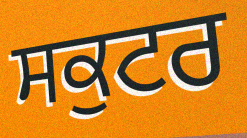
ਸਕੁਟਰ